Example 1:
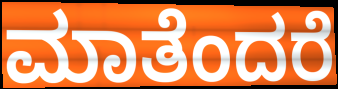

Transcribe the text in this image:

ಮಾತೆಂದರೆ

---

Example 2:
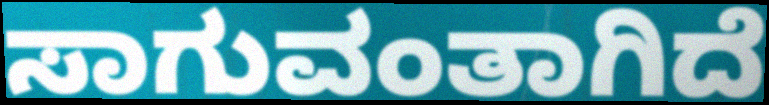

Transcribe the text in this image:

ಸಾಗುವಂತಾಗಿದೆ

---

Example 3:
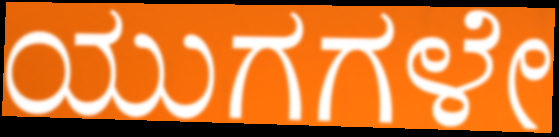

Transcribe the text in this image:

ಯುಗಗಳೇ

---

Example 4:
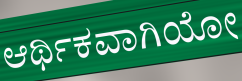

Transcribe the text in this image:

ಆರ್ಥಿಕವಾಗಿಯೋ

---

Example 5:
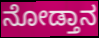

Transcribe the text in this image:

ನೋಡ್ತಾನ